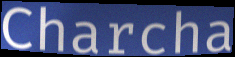
Charcha